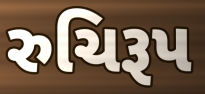
રુચિરૂપ